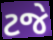
ટજે